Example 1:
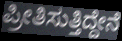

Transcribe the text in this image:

ಪ್ರೀತಿಸುತ್ತಿದ್ದೇನೆ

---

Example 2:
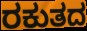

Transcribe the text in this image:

ರಕುತದ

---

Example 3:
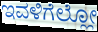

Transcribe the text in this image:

ಇವಳಿಗೆಲ್ಲೋ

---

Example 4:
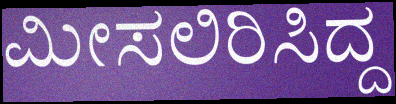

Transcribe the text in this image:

ಮೀಸಲಿರಿಸಿದ್ದ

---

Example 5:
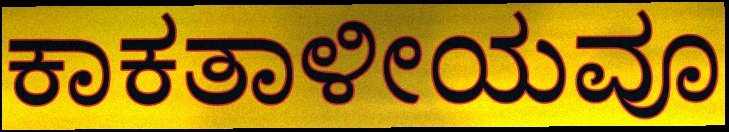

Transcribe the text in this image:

ಕಾಕತಾಳೀಯವೂ